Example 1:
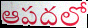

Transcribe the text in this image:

ఆపదలో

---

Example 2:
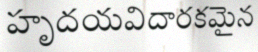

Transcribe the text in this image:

హృదయవిదారకమైన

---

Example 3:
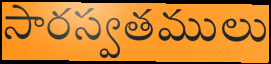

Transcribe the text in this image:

సారస్వతములు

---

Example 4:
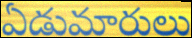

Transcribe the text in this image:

ఏడుమారులు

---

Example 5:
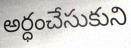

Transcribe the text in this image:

అర్ధంచేసుకుని